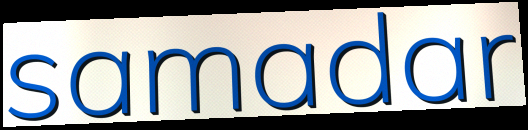
samadar